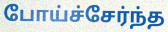
போய்ச்சேர்ந்த